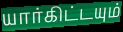
யார்கிட்டயும்